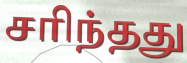
சரிந்தது